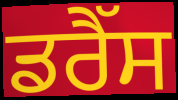
ਡਰੈੱਸ